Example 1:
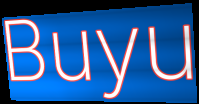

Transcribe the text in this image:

Buyu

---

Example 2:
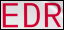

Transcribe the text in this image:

EDR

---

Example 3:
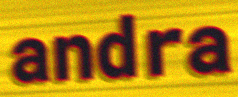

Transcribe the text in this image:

andra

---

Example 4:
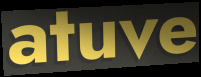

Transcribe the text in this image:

atuve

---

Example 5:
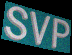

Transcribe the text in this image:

SVP